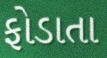
ફોડાતા